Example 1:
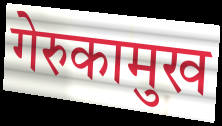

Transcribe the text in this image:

गेरुकामुख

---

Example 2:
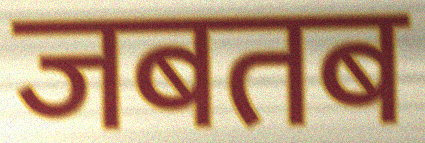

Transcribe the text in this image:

जबतब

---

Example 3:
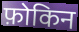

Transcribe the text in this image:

फ़ोकिन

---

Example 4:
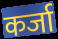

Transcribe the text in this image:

कर्जा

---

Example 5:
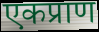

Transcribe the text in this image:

एकप्राण